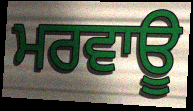
ਮਰਵਾਊ